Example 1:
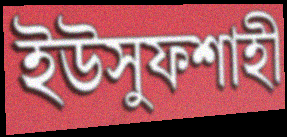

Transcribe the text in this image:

ইউসুফশাহী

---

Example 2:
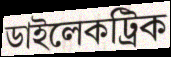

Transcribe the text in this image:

ডাইলেকট্রিক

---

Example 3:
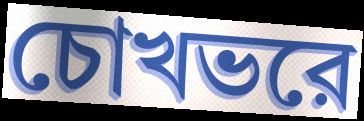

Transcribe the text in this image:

চোখভরে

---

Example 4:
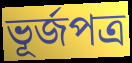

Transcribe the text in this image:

ভূর্জপত্র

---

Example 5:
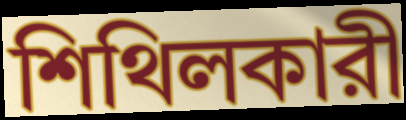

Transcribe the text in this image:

শিথিলকারী